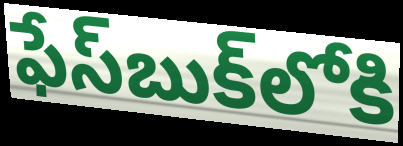
ఫేస్‌బుక్‌లోకి